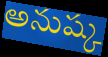
అనుష్క